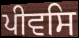
ਪੀਵਸਿ